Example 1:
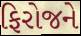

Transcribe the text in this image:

ફિરોજને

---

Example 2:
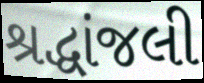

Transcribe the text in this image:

શ્રદ્ધાંજલી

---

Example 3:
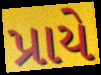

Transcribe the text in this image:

પ્રાયે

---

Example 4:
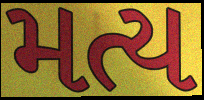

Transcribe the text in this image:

મત્ય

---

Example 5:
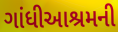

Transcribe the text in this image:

ગાંધીઆશ્રમની